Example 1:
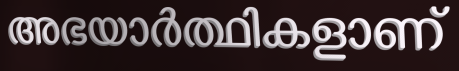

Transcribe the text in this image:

അഭയാർത്ഥികളാണ്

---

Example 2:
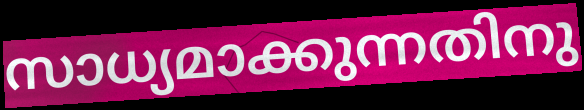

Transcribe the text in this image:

സാധ്യമാക്കുന്നതിനു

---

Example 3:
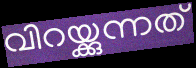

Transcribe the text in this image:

വിറയ്ക്കുന്നത്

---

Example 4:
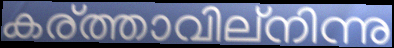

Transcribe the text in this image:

കര്ത്താവില്നിന്നു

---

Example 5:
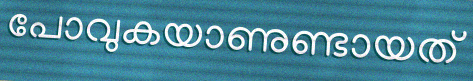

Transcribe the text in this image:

പോവുകയാണുണ്ടായത്